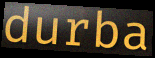
durba